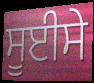
ਸੂਈਸੇ